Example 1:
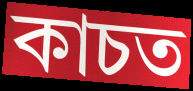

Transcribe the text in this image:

কাচত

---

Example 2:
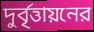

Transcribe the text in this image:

দুর্বৃত্তায়নের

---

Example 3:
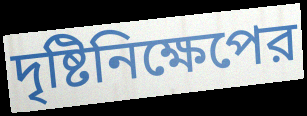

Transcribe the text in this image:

দৃষ্টিনিক্ষেপের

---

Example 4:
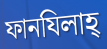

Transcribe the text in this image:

ফানযিলাহ্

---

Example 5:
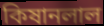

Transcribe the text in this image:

কিষানলাল